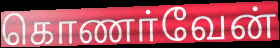
கொணர்வேன்